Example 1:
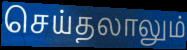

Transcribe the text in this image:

செய்தலாலும்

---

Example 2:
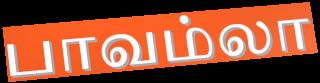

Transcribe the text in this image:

பாவம்லா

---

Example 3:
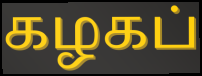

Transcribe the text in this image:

கழகப்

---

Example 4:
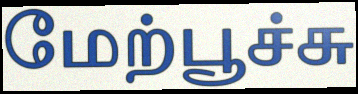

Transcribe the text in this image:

மேற்பூச்சு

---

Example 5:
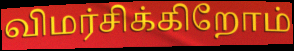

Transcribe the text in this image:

விமர்சிக்கிறோம்